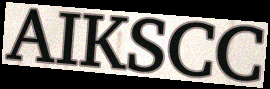
AIKSCC